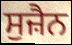
ਸੁਜ਼ੈਨ